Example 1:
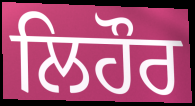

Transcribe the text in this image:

ਲਿਹੌਰ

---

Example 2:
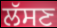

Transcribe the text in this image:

ਲੱਸਣ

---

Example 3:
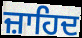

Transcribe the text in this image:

ਜ਼ਾਹਿਦ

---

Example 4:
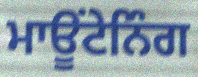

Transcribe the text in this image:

ਮਾਊਂਟੇਨਿੰਗ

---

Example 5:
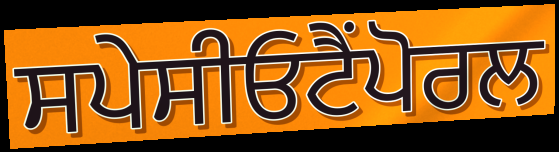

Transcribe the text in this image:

ਸਪੇਸੀਓਟੈਂਪੋਰਲ